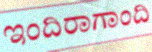
ಇಂದಿರಾಗಾಂದಿ